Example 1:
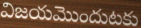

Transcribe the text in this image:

విజయమొందుటకు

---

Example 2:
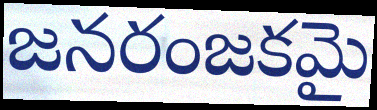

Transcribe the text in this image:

జనరంజకమై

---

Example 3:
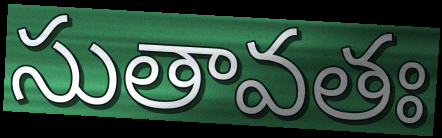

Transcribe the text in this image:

సుతావతః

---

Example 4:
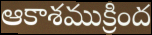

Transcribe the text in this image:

ఆకాశముక్రింద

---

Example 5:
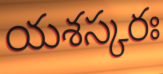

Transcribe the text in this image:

యశస్కరః